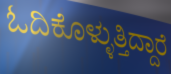
ಓದಿಕೊಳ್ಳುತ್ತಿದ್ದಾರೆ